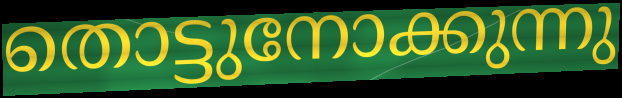
തൊട്ടുനോക്കുന്നു